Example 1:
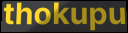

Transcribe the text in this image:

thokupu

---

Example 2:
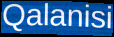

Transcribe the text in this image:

Qalanisi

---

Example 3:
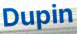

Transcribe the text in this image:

Dupin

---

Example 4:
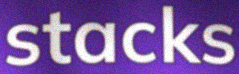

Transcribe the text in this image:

stacks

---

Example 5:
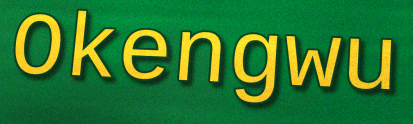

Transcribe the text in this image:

Okengwu